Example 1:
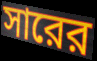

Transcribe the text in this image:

সারের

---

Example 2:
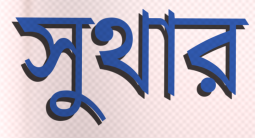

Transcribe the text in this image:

সুথার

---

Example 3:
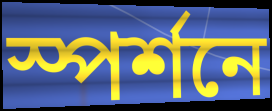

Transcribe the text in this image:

স্পর্শনে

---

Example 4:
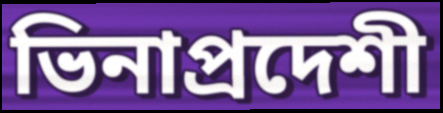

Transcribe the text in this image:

ভিনাপ্রদেশী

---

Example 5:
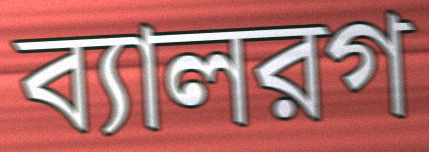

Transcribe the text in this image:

ব্যালরগ